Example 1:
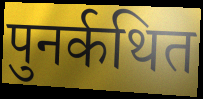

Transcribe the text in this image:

पुनर्कथित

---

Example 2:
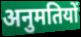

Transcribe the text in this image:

अनुमतियों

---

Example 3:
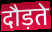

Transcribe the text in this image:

दौड़ते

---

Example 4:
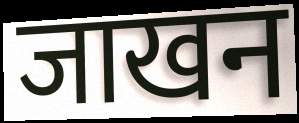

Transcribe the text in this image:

जाखन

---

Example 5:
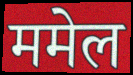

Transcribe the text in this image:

ममेल